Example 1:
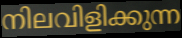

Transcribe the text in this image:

നിലവിളിക്കുന്ന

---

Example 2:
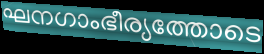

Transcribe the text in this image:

ഘനഗാംഭീര്യത്തോടെ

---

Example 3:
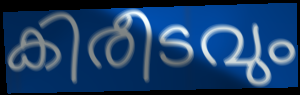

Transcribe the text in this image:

കിരീടവും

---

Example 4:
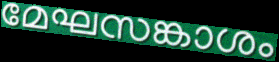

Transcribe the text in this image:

മേഘസങ്കാശം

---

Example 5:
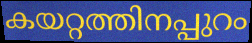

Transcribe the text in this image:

കയറ്റത്തിനപ്പുറം